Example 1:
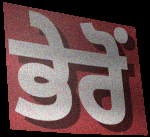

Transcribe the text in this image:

ਭੇਰੋਂ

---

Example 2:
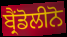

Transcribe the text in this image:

ਬ੍ਰੈਂਡੋਲੀਨੋ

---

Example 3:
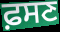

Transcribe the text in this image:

ਫ਼ਸਣ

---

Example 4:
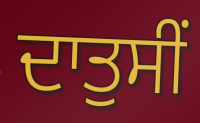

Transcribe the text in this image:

ਦਾਤੁਸੀਂ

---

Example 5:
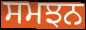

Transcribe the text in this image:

ਸਮਝਨ